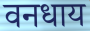
वनधाय